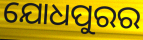
ଯୋଧପୁରର